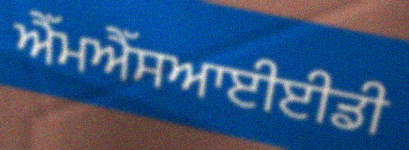
ਐੱਮਐੱਸਆਈਈਡੀ